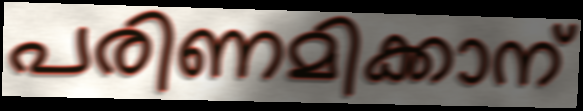
പരിണമിക്കാന്